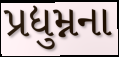
પ્રદ્યુમ્નના